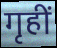
गृहीं